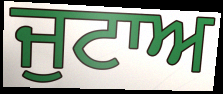
ਜੁਟਾਅ